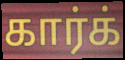
கார்க்